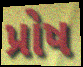
પ્રોષ